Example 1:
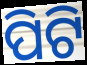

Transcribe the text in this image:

ପିଟି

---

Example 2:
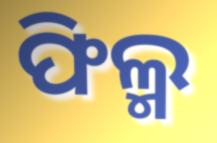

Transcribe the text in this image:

ଫିଲ୍ମ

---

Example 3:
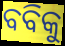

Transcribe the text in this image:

ବବିକୁ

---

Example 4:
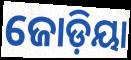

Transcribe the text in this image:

ଜୋଡ଼ିୟା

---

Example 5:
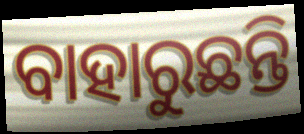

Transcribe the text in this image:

ବାହାରୁଛନ୍ତି